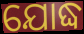
ଯୋଦ୍ଧ